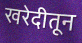
खरेदीतून